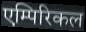
एम्पिरिकल